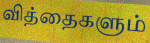
வித்தைகளும்